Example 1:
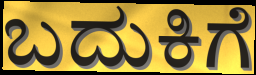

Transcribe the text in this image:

ಬದುಕಿಗೆ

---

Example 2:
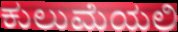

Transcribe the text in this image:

ಕುಲುಮೆಯಲಿ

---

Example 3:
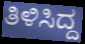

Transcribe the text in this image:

ತಿಳಿಸಿದ್ದ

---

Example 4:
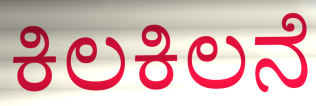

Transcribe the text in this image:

ಕಿಲಕಿಲನೆ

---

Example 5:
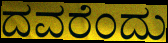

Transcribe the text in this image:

ದವರೆಂದು